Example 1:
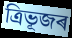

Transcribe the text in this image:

ত্ৰিভূজৰ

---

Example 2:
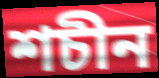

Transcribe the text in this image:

শচীন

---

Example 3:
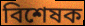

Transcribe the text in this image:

বিশেষক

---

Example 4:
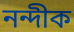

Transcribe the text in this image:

নন্দীক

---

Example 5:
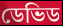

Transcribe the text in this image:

ডেভিড